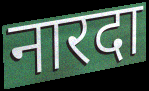
नारदा